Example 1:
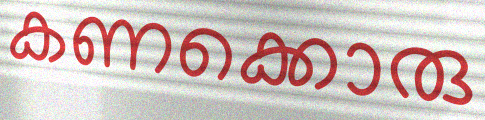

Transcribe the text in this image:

കണക്കൊരു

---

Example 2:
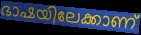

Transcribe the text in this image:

ഭാഷയിലേക്കാണ്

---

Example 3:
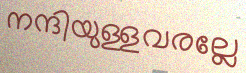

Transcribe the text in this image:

നന്ദിയുള്ളവരല്ലേ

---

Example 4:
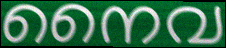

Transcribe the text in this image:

നൈവ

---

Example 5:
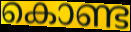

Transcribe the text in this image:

കൊണ്ട